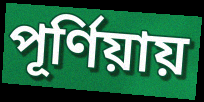
পূর্ণিয়ায়